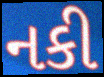
નકી